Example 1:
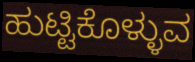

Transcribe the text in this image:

ಹುಟ್ಟಿಕೊಳ್ಳುವ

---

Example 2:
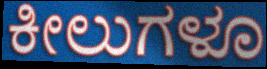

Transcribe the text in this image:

ಕೀಲುಗಳೂ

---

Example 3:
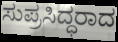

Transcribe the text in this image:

ಸುಪ್ರಸಿದ್ಧರಾದ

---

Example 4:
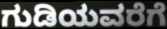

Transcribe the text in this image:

ಗುಡಿಯವರೆಗೆ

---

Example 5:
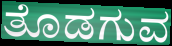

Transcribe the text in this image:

ತೊಡಗುವ